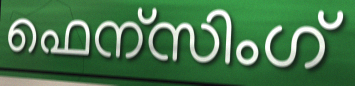
ഫെന്സിംഗ്